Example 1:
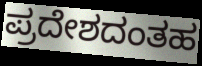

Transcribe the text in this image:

ಪ್ರದೇಶದಂತಹ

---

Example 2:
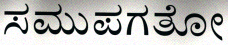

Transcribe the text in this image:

ಸಮುಪಗತೋ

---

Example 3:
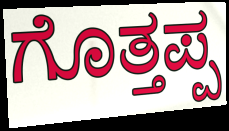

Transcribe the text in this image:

ಗೊತ್ತಪ್ಪ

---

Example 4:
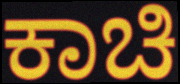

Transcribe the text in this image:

ಕಾಚಿ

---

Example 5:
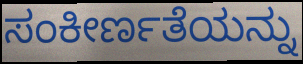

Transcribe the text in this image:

ಸಂಕೀರ್ಣತೆಯನ್ನು